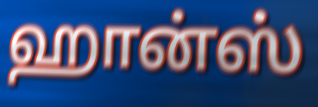
ஹான்ஸ்